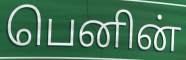
பெனின்